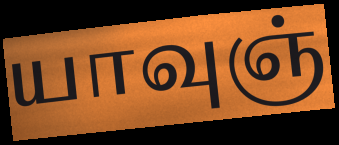
யாவுஞ்